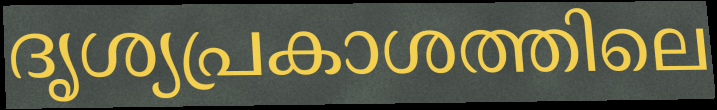
ദൃശ്യപ്രകാശത്തിലെ